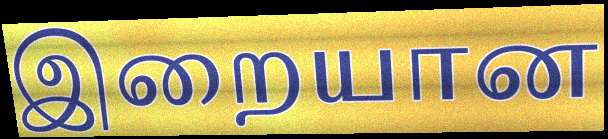
இறையான